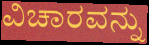
ವಿಚಾರವನ್ನು